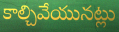
కాల్చివేయునట్లు